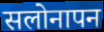
सलोनापन